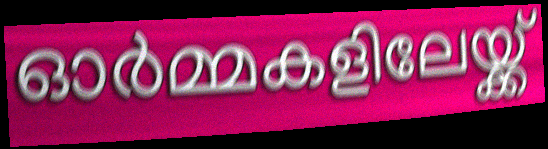
ഓർമ്മകളിലേയ്ക്ക്